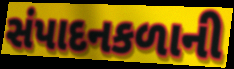
સંપાદનકળાની